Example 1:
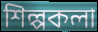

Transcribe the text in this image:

শিল্পকলা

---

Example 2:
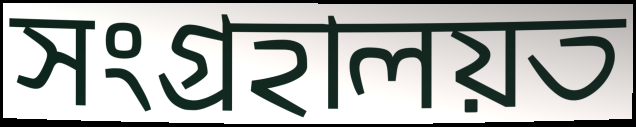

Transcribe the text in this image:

সংগ্ৰহালয়ত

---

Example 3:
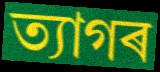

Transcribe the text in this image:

ত্যাগৰ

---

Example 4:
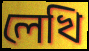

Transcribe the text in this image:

লেখি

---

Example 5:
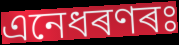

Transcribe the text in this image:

এনেধৰণৰঃ